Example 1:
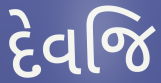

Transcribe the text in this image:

દેવજિ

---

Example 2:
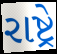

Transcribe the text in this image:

રાષ્ટ્રે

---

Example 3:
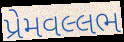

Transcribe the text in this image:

પ્રેમવલ્લભ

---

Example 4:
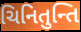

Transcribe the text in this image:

ચિનિતુન્તિ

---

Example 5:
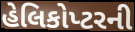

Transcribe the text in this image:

હેલિકોપ્ટરની